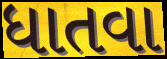
ધાતવા